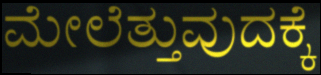
ಮೇಲೆತ್ತುವುದಕ್ಕೆ